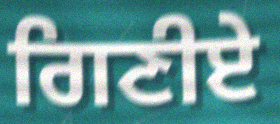
ਗਿਣੀਏ